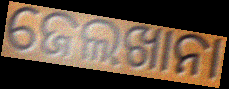
ଜେଲଖାନା